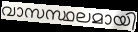
വാസസ്ഥലമായി